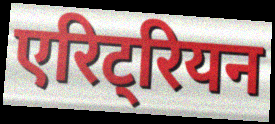
एरिट्रियन